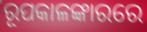
ରୂପକାଳଙ୍କାରରେ